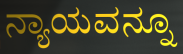
ನ್ಯಾಯವನ್ನೂ